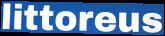
littoreus